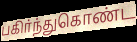
பகிர்ந்துகொண்ட